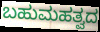
ಬಹುಮಹತ್ವದ